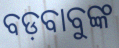
ବଡ଼ବାବୁଙ୍କ